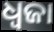
ଧ୍ୱଜା